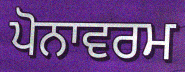
ਪੋਨਾਵਰਮ